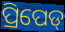
ପ୍ରିପେଡ୍